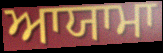
ਆਯਾਮਾ